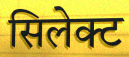
सिलेक्ट